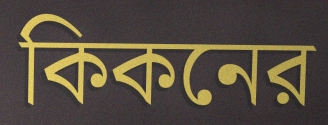
কিকনের